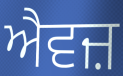
ਐਵਜ਼